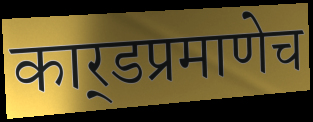
कार्डप्रमाणेच